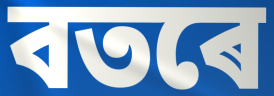
বতৰে